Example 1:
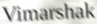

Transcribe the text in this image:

Vimarshak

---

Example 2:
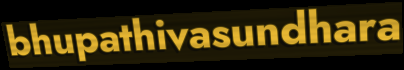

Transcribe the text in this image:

bhupathivasundhara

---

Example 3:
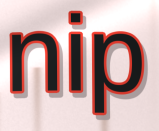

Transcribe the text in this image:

nip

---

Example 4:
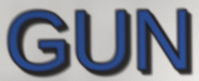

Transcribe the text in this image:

GUN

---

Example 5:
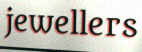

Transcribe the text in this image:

jewellers